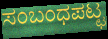
ಸಂಬಂಧಪಟ್ಟ